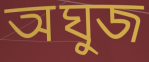
অঘুজ